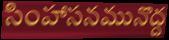
సింహాసనమునొద్ద